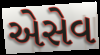
એસેવ